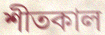
শীতকাল